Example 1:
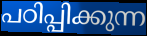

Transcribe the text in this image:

പഠിപ്പിക്കുന്ന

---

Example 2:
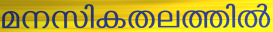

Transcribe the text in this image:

മനസികതലത്തിൽ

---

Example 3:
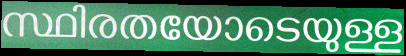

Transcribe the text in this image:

സ്ഥിരതയോടെയുള്ള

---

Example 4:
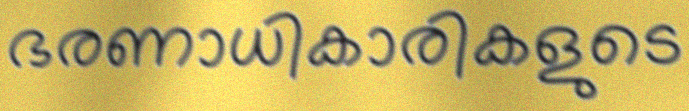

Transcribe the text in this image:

ഭരണാധികാരികളുടെ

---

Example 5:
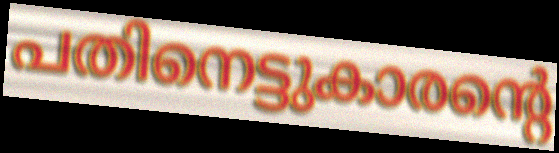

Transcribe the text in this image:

പതിനെട്ടുകാരന്റെ